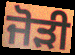
ਜੋੜੀ